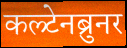
कल्टेनब्रुनर